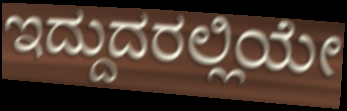
ಇದ್ದುದರಲ್ಲಿಯೇ